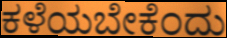
ಕಳೆಯಬೇಕೆಂದು